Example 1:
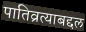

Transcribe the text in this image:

पातिव्रत्याबद्दल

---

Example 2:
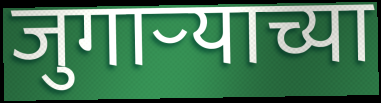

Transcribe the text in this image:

जुगाऱ्याच्या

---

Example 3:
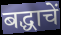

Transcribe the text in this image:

बद्धाचें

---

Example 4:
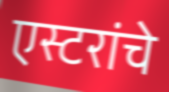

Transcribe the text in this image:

एस्टरांचे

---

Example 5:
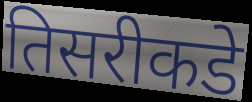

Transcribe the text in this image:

तिसरीकडे